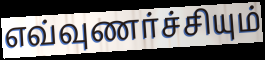
எவ்வுணர்ச்சியும்